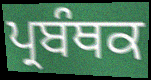
ਪ੍ਰਬੰਥਕ